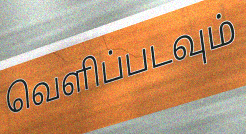
வெளிப்படவும்